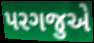
પરગજુએ